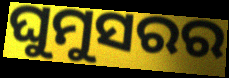
ଘୁମୁସରର